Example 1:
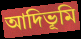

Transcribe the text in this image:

আদিভূমি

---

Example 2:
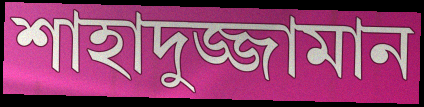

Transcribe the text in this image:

শাহাদুজ্জামান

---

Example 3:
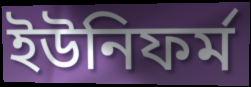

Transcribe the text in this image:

ইউনিফর্ম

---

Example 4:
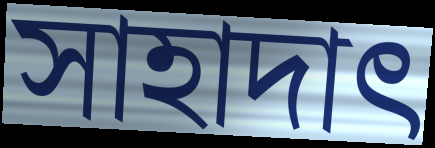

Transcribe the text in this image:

সাহাদাৎ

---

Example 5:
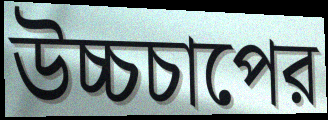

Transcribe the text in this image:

উচ্চচাপের